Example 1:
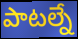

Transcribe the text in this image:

పాటల్నే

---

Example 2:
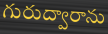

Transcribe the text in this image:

గురుద్వారాను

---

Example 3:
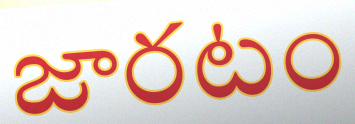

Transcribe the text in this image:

జారటం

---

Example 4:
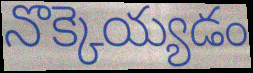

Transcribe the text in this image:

నొక్కెయ్యడం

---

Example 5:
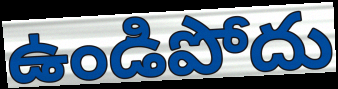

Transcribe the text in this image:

ఉండిపోదు